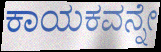
ಕಾಯಕವನ್ನೇ